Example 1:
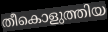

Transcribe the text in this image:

തീകൊളുത്തിയ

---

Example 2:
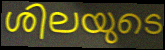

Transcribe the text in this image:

ശിലയുടെ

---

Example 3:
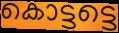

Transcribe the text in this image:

കൊട്ടട്ടെ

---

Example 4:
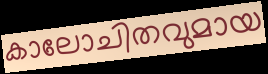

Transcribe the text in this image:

കാലോചിതവുമായ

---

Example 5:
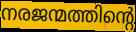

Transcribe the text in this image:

നരജന്മത്തിന്റെ